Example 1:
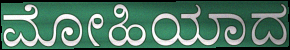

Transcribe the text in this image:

ಮೋಹಿಯಾದ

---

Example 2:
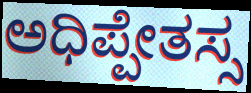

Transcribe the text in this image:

ಅಧಿಪ್ಪೇತಸ್ಸ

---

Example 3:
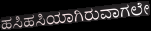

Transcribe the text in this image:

ಹಸಿಹಸಿಯಾಗಿರುವಾಗಲೇ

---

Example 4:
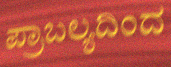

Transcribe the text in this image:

ಪ್ರಾಬಲ್ಯದಿಂದ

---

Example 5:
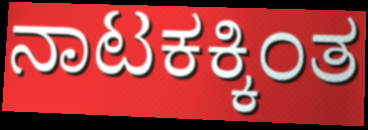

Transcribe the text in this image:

ನಾಟಕಕ್ಕಿಂತ